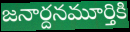
జనార్దనమూర్తికి